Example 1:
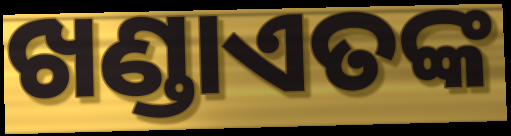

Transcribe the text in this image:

ଖଣ୍ଡାଏତଙ୍କ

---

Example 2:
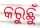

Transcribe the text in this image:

କରୁଛୁଁ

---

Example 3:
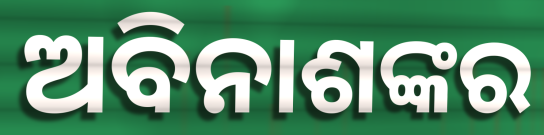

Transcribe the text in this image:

ଅବିନାଶଙ୍କର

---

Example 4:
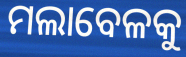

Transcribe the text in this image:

ମଲାବେଳକୁ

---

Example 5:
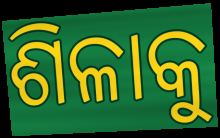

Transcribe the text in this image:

ଶିଳାକୁ